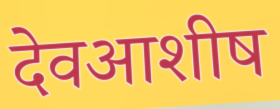
देवआशीष